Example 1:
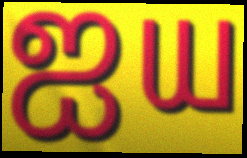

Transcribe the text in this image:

ஐய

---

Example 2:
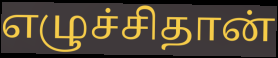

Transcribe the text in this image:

எழுச்சிதான்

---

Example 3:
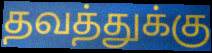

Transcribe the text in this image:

தவத்துக்கு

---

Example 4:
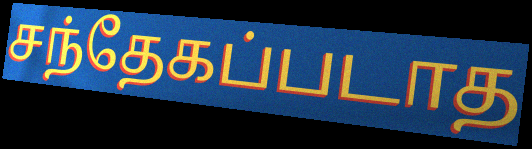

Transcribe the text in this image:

சந்தேகப்படாத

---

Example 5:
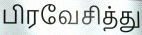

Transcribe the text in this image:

பிரவேசித்து